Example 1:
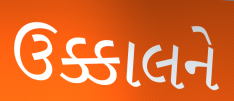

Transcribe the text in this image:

ઉક્કાલને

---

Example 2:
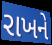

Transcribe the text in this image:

રાખને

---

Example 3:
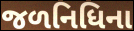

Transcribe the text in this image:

જળનિધિના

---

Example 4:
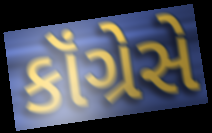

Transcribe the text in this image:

કૉંગ્રેસે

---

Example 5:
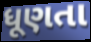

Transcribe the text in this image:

ધૂણતા